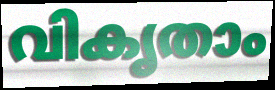
വികൃതാം